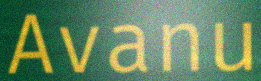
Avanu